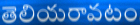
తెలియరావటం